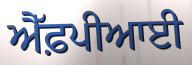
ਐੱਫ਼ਪੀਆਈ